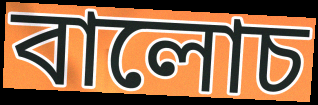
বালোচ